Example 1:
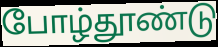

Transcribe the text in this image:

போழ்தூண்டு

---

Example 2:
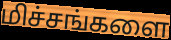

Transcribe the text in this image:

மிச்சங்களை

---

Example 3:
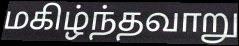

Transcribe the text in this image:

மகிழ்ந்தவாறு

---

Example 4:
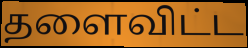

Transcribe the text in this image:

தளைவிட்ட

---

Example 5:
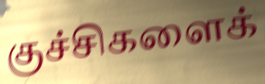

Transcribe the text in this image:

குச்சிகளைக்